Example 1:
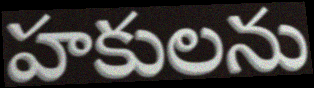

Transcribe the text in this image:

హకులను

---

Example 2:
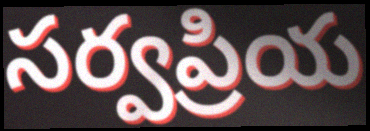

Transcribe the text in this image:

సర్వప్రియ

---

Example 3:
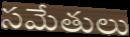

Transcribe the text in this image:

సమేతులు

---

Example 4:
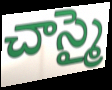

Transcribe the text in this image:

చాస్మై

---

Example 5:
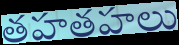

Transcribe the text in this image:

తహతహలు